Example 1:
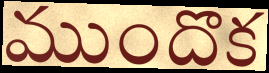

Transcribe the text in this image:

ముందొక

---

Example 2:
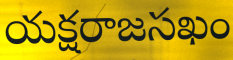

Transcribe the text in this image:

యక్షరాజసఖం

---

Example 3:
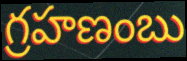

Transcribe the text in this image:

గ్రహణంబు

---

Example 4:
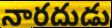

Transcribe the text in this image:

నారదుడు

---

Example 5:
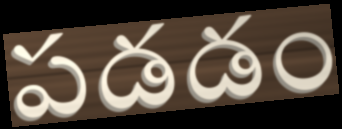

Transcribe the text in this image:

పడడం